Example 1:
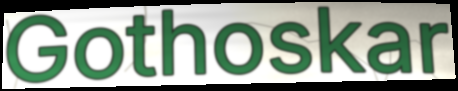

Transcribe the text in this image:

Gothoskar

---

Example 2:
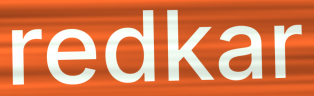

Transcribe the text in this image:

redkar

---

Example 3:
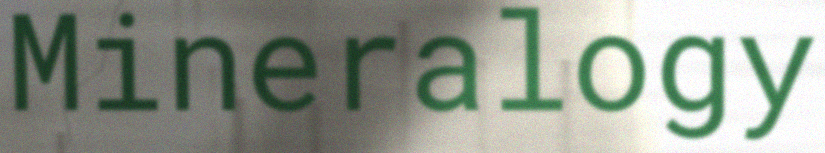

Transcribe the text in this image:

Mineralogy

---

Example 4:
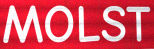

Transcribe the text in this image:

MOLST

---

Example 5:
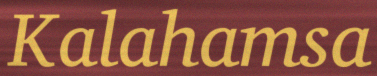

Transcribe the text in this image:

Kalahamsa